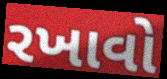
રખાવો